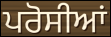
ਪਰੋਸੀਆਂ